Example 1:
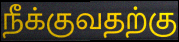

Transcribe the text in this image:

நீக்குவதற்கு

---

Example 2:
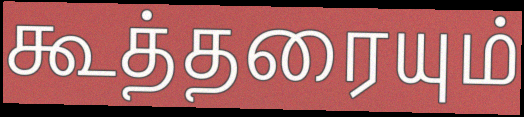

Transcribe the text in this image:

கூத்தரையும்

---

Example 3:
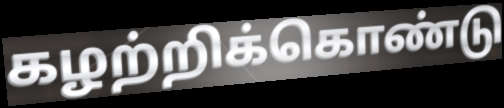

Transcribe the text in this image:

கழற்றிக்கொண்டு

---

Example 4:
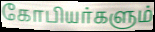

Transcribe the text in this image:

கோபியர்களும்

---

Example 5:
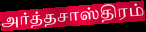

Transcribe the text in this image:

அர்த்தசாஸ்திரம்